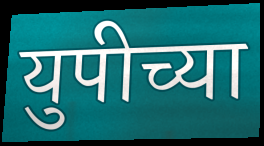
युपीच्या